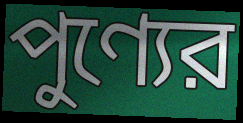
পুণ্যের